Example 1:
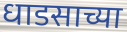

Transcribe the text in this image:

धाडसाच्या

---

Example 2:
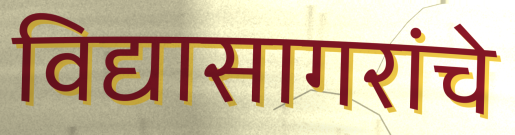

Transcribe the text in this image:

विद्यासागरांचे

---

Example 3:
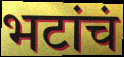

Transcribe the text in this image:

भटांचं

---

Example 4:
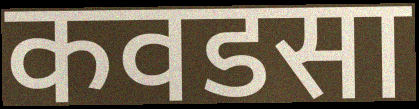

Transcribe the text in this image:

कवडसा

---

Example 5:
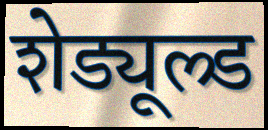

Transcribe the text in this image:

शेड्यूल्ड